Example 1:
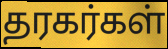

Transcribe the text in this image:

தரகர்கள்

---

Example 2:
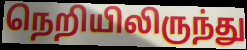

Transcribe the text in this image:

நெறியிலிருந்து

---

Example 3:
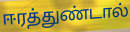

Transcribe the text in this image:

ஈரத்துண்டால்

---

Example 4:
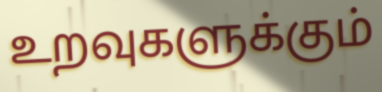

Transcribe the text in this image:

உறவுகளுக்கும்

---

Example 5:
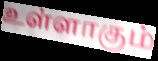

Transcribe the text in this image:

உள்ளாகும்